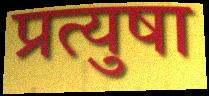
प्रत्युषा